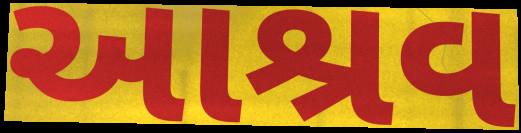
આશ્રવ